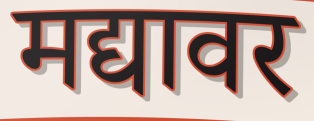
मद्यावर